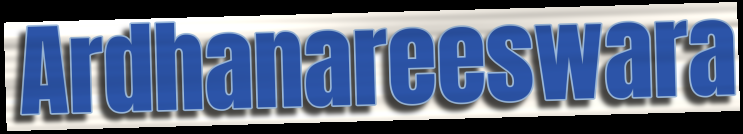
Ardhanareeswara